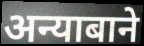
अन्याबाने